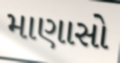
માણાસો